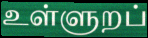
உள்ளுறப்